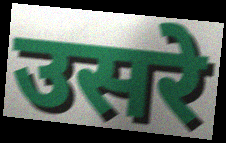
उसरे